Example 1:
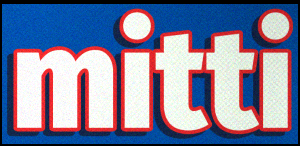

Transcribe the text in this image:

mitti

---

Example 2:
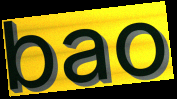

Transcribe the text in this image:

bao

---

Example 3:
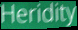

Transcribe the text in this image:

Heridity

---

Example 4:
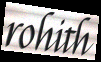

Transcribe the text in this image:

rohith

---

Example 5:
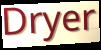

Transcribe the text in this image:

Dryer